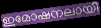
ഇമോഷനലായി